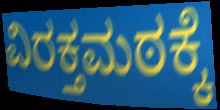
ವಿರಕ್ತಮಠಕ್ಕೆ